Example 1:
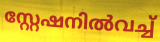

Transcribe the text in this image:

സ്റ്റേഷനിൽവച്ച്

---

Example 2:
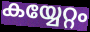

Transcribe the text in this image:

കയ്യേറ്റം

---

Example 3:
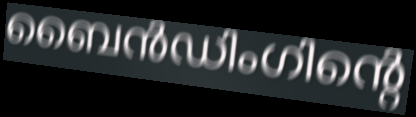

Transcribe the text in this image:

ബൈൻഡിംഗിന്റെ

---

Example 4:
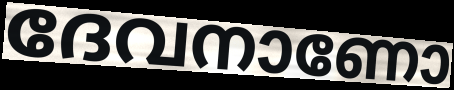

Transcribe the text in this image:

ദേവനാണോ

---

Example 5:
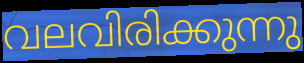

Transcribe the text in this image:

വലവിരിക്കുന്നു